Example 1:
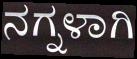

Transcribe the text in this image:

ನಗ್ನಳಾಗಿ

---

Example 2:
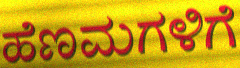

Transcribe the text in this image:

ಹೆಣಮಗಳಿಗೆ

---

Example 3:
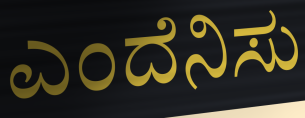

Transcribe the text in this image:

ಎಂದೆನಿಸು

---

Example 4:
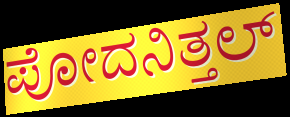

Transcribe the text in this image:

ಪೋದನಿತ್ತಲ್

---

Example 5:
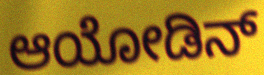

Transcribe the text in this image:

ಆಯೋಡಿನ್